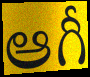
ఆగీ